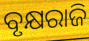
ବୃକ୍ଷରାଜି